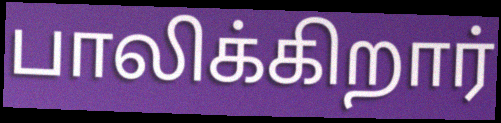
பாலிக்கிறார்